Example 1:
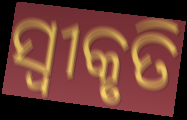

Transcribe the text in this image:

ସ୍ବୀକୃତି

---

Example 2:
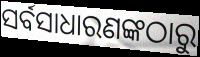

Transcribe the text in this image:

ସର୍ବସାଧାରଣଙ୍କଠାରୁ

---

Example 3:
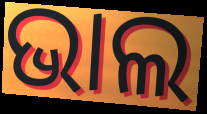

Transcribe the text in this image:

ଭାଲ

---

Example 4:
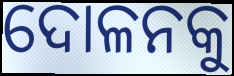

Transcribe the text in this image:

ଦୋଳନକୁ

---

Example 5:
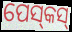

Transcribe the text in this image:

ପେସ୍‌କସ୍